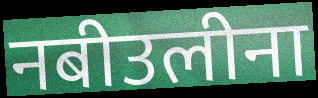
नबीउलीना